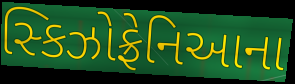
સ્કિઝોફ્રેનિઆના